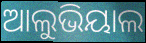
ଆଲୁଭିୟାଲ